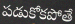
పడుకోకపోతే